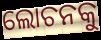
ଲୋଚନକୁ